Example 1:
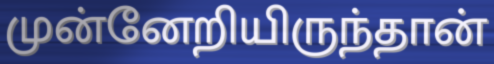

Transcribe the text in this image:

முன்னேறியிருந்தான்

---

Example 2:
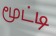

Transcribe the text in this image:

மூட்டி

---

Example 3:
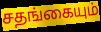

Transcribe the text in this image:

சதங்கையும்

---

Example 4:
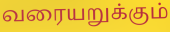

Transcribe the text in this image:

வரையறுக்கும்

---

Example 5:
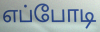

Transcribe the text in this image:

எப்போடி